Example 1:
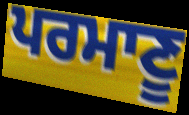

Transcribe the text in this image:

ਪਰਮਾਣੂ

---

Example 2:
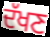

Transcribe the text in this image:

ਦੱਖਣ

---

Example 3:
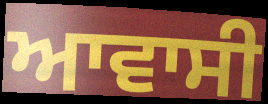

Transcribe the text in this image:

ਆਵਾਸੀ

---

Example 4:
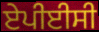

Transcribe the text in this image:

ਏਪੀਈਸੀ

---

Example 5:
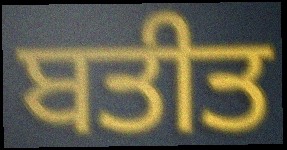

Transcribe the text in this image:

ਬਤੀਤ